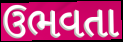
ઉભવતા